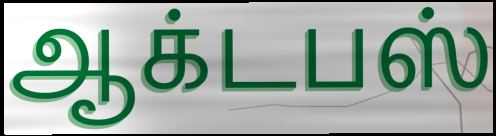
ஆக்டபஸ்